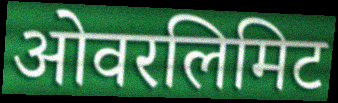
ओवरलिमिट